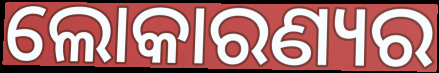
ଲୋକାରଣ୍ୟର